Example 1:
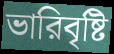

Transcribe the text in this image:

ভারিবৃষ্টি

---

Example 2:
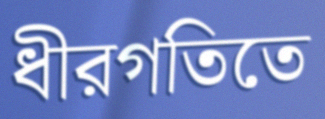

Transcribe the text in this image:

ধীরগতিতে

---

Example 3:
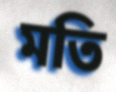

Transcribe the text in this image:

মতি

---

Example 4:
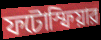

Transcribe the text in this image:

ফটোস্ফিয়ার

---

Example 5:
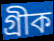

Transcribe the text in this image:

গ্রীক